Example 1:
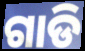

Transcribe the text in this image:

ଗାଡି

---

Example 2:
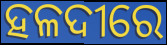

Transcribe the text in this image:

ହଳଦୀରେ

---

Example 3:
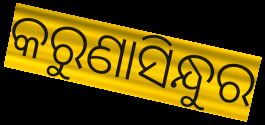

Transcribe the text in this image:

କରୁଣାସିନ୍ଧୁର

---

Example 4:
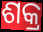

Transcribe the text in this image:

ଶକ୍ର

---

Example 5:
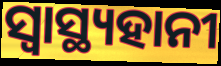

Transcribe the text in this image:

ସ୍ବାସ୍ଥ୍ୟହାନୀ